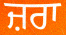
ਜ਼ਰਾ